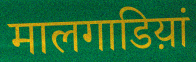
मालगाडिय़ां